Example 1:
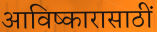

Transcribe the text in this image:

आविष्कारासाठीं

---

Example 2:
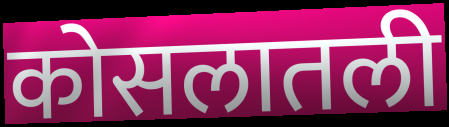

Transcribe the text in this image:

कोसलातली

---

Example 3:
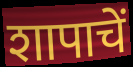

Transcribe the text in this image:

शापाचें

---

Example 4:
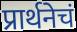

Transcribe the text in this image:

प्रार्थनेचं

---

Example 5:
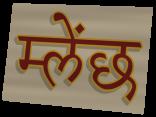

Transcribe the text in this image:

म्लेंछ